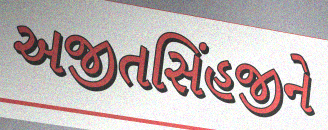
અજીતસિંહજીને